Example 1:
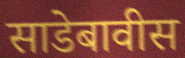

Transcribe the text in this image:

साडेबावीस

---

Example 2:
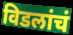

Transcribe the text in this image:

विडलांचं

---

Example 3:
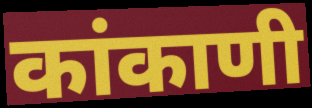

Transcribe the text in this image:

कांकाणी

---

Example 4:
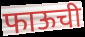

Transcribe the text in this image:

फाऊची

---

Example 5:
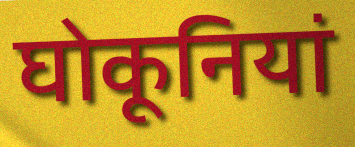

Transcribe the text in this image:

घोकूनियां